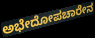
ಅಭೇದೋಪಚಾರೇನ